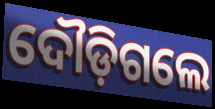
ଦୌଡ଼ିଗଲେ